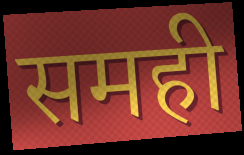
समही